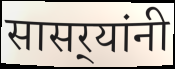
सासर्यांनी